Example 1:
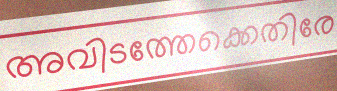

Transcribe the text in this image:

അവിടത്തേക്കെതിരേ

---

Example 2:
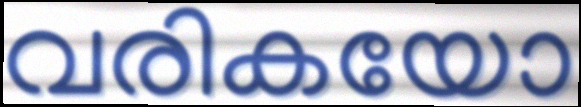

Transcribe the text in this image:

വരികയോ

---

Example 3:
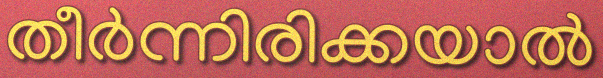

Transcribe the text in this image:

തീർന്നിരിക്കയാൽ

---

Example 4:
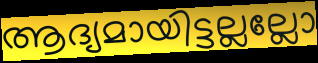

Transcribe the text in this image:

ആദ്യമായിട്ടല്ലല്ലോ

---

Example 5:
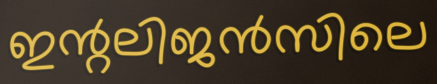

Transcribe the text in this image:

ഇന്റലിജൻസിലെ